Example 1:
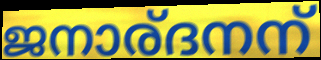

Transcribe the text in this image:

ജനാര്ദനന്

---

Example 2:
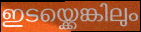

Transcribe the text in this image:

ഇടയ്ക്കെങ്കിലും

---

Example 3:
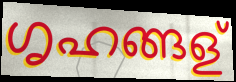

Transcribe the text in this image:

ഗൃഹങ്ങള്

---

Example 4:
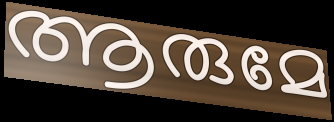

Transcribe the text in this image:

ആരുമേ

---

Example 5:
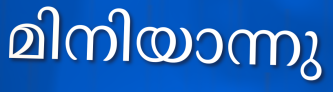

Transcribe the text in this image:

മിനിയാന്നു